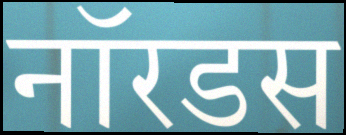
नॉरडस